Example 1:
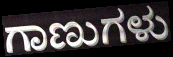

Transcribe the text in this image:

ಗಾಣುಗಳು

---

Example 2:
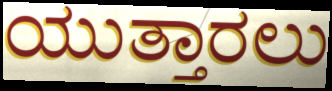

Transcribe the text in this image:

ಯುತ್ತಾರಲು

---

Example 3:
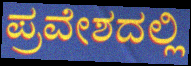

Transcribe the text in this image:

ಪ್ರವೇಶದಲ್ಲಿ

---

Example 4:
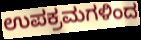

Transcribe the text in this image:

ಉಪಕ್ರಮಗಳಿಂದ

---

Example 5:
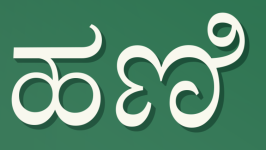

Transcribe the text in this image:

ಹಣಿ